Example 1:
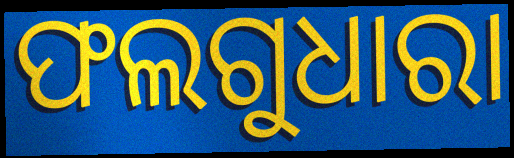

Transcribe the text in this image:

ଫଲଗୁଧାରା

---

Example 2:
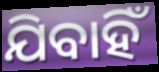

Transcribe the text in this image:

ଯିବାହିଁ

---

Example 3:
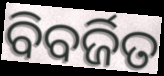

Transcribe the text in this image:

ବିବର୍ଜିତ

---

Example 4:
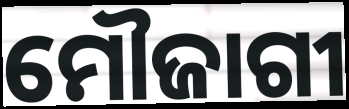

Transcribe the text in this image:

ମୌଜାଗୀ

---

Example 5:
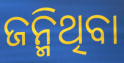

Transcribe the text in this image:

ଜନ୍ମିଥିବା